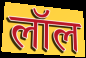
लॉल